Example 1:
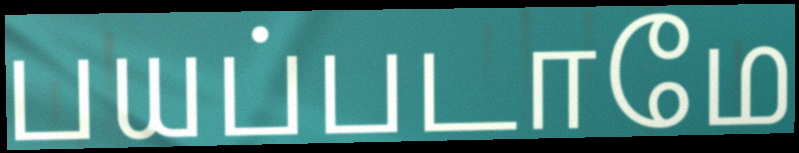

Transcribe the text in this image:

பயப்படாமே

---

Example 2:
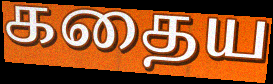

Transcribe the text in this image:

கதைய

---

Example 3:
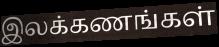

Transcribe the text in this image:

இலக்கணங்கள்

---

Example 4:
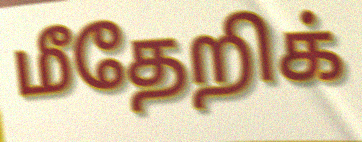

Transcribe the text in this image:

மீதேறிக்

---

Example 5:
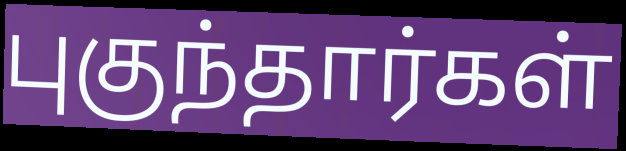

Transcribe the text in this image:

புகுந்தார்கள்